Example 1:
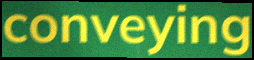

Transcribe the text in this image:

conveying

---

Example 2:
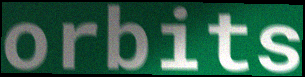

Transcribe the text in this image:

orbits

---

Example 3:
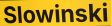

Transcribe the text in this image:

Slowinski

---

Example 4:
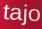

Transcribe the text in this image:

tajo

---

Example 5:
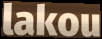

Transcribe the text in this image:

lakou